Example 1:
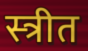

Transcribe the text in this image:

स्त्रीत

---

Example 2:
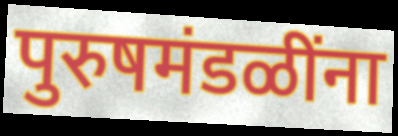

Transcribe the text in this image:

पुरुषमंडळींना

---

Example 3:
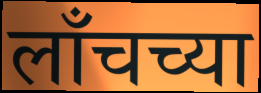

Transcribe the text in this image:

लाँचच्या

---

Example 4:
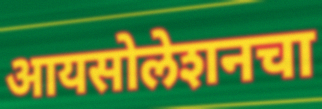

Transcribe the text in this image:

आयसोलेशनचा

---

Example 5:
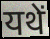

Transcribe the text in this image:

यथें